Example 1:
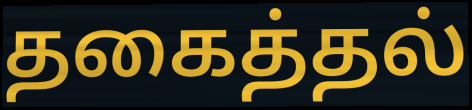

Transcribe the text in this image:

தகைத்தல்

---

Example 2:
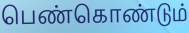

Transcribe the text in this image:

பெண்கொண்டும்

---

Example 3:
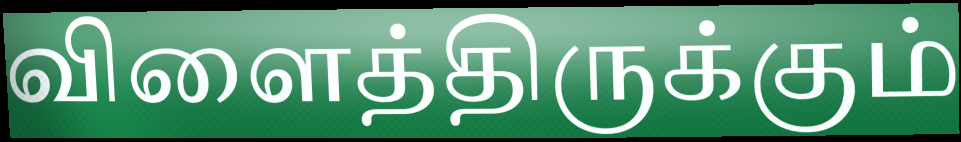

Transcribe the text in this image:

விளைத்திருக்கும்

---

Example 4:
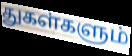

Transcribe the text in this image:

துகள்களும்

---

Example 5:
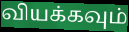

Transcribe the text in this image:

வியக்கவும்